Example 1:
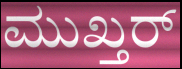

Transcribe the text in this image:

ಮುಖ್ತರ್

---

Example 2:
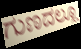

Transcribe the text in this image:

ಗುಣದಲ್ಲೂ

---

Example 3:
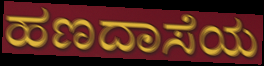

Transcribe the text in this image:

ಹಣದಾಸೆಯ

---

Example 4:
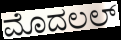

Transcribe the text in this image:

ಮೊದಲಲ್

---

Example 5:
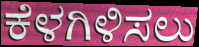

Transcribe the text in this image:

ಕೆಳಗಿಳಿಸಲು